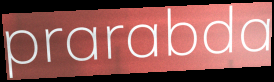
prarabda